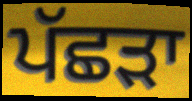
ਪੱਛੜਾ